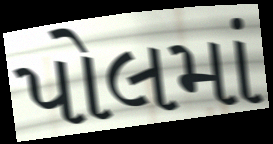
પોલમાં